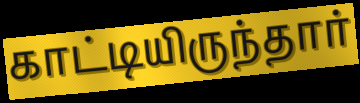
காட்டியிருந்தார்